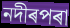
নদীৰপৰা